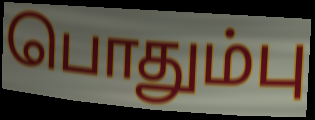
பொதும்பு